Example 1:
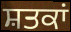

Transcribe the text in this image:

ਸ਼ਤਕਾਂ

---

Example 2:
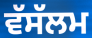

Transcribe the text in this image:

ਵੱਸੱਲਮ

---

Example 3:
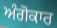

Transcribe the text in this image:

ਅੰਗੋਕਾਰ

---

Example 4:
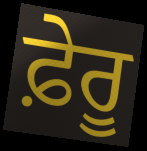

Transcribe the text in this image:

ਫ਼ੇਰੂ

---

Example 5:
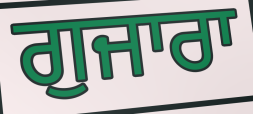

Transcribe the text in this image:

ਗੁਜਾਰਾ